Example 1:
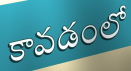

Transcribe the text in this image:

కావడంలో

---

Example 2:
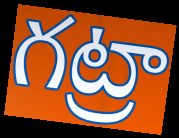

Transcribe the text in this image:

గట్రా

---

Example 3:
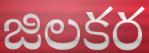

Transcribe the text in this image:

జిలకర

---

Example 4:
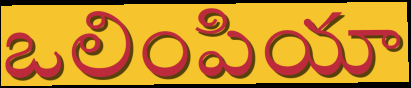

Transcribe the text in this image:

ఒలింపియా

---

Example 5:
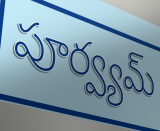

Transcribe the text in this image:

పూర్వ్యమ్